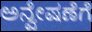
ಅನ್ವೇಷಣೆಗೆ